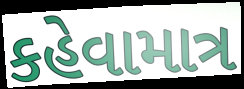
કહેવામાત્ર